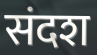
संदश